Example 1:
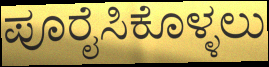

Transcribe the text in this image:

ಪೂರೈಸಿಕೊಳ್ಳಲು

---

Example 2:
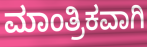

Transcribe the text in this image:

ಮಾಂತ್ರಿಕವಾಗಿ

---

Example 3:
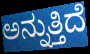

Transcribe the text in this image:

ಅನ್ನುತ್ತಿದೆ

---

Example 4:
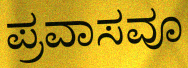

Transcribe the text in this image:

ಪ್ರವಾಸವೂ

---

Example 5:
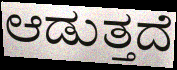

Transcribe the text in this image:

ಆಡುತ್ತದೆ